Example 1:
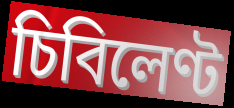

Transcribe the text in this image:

চিবিলেণ্ট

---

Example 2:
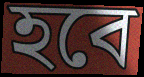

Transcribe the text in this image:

হবে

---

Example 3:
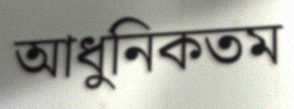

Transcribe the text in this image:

আধুনিকতম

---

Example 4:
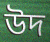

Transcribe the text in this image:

উদ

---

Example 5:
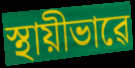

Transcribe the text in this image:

স্থায়ীভাৱে